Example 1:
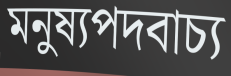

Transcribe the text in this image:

মনুষ্যপদবাচ্য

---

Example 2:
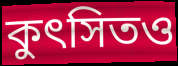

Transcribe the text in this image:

কুৎসিতও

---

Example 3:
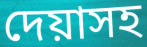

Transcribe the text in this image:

দেয়াসহ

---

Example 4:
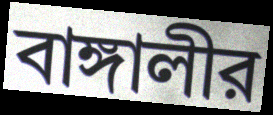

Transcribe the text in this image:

বাঙ্গালীর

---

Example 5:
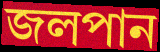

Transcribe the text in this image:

জলপান